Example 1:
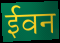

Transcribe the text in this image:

ईवन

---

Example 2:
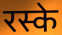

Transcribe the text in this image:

रस्के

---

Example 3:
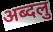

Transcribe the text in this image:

अब्दलु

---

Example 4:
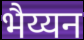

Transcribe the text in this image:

भैय्यन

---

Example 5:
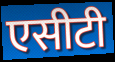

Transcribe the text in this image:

एसीटी